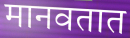
मानवतात